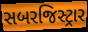
સબરજિસ્ટ્રાર